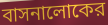
বাসনালোকের